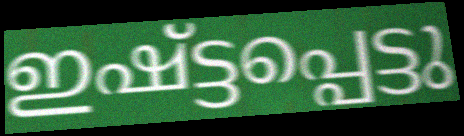
ഇഷ്ട്ടപ്പെട്ടു